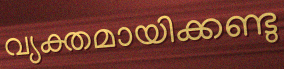
വ്യക്തമായിക്കണ്ടു